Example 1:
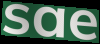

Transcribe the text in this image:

sae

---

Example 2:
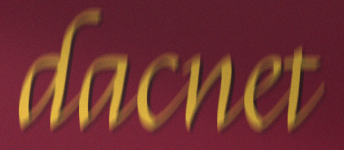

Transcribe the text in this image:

dacnet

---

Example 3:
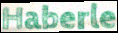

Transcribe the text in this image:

Haberle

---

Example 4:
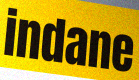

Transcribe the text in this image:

indane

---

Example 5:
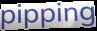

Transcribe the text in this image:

pipping